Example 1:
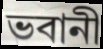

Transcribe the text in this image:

ভবানী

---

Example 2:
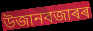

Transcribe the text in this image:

উজানবজাৰৰ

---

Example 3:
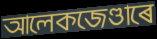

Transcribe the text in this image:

আলেকজেণ্ডাৰে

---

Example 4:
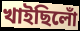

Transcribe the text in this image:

খাইছিলোঁ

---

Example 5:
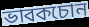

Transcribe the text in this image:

ভাবকচোন